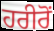
ਹਰੀਰੋਂ